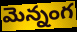
మెన్నంగ